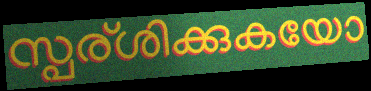
സ്പര്ശിക്കുകയോ